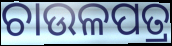
ଚାଉଳପତ୍ର